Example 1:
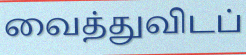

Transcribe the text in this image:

வைத்துவிடப்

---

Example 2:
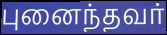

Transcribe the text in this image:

புனைந்தவர்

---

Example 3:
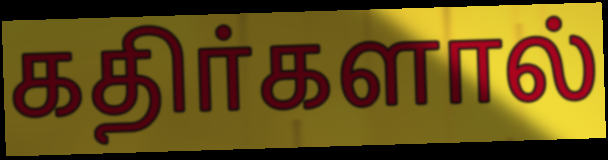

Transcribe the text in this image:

கதிர்களால்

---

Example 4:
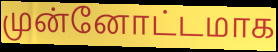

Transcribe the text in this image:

முன்னோட்டமாக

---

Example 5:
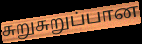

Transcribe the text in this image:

சுறுசுறுப்பான